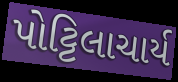
પોટ્ટિલાચાર્ય